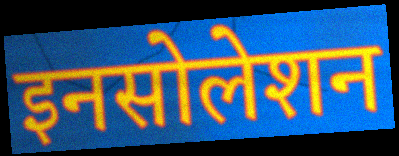
इनसोलेशन